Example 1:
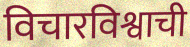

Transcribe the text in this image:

विचारविश्वाची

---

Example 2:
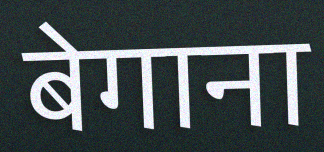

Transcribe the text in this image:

बेगाना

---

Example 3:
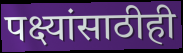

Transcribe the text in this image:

पक्ष्यांसाठीही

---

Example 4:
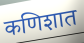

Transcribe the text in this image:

कणिशात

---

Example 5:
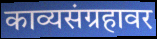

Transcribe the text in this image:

काव्यसंग्रहावर